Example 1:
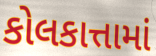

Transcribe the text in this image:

કોલકાત્તામાં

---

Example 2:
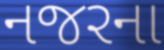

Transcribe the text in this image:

નજરના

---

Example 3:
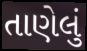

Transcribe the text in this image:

તાણેલું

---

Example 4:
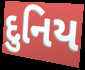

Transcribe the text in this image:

દુનિય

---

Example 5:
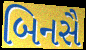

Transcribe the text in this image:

બિનસૈ